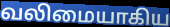
வலிமையாகிய